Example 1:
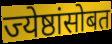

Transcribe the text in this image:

ज्येष्ठांसोबत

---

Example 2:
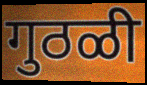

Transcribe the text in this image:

गुठळी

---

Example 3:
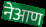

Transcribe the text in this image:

नेआण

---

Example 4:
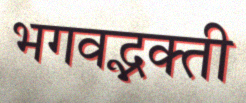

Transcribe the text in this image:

भगवद्भक्ती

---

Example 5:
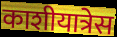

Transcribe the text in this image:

काशीयात्रेस